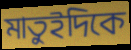
মাতুইদিকে